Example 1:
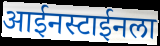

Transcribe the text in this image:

आईनस्टाईनला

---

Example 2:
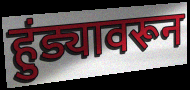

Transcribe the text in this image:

हुंड्यावरून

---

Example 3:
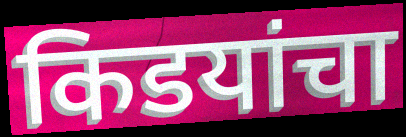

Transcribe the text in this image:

किडयांचा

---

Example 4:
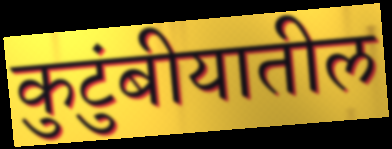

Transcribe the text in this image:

कुटुंबीयातील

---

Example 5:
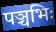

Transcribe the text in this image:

पञ्चभिः